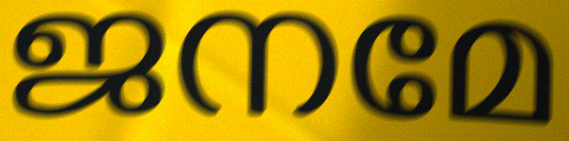
ജനമേ